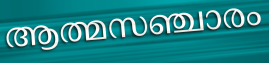
ആത്മസഞ്ചാരം